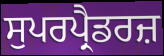
ਸੁਪਰਪ੍ਰੈਡਰਜ਼